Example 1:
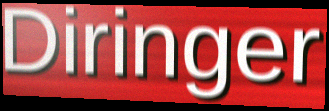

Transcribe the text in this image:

Diringer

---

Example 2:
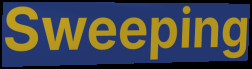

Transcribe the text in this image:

Sweeping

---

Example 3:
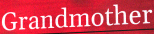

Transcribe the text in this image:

Grandmother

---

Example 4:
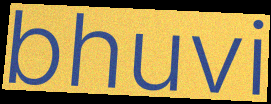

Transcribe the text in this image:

bhuvi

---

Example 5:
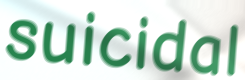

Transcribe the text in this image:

suicidal